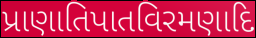
પ્રાણાતિપાતવિરમણાદિ